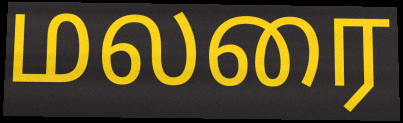
மலரை